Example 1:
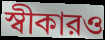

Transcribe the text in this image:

স্বীকারও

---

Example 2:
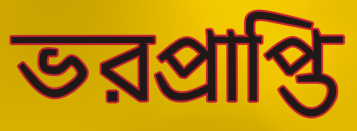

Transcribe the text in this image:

ভরপ্রাপ্তি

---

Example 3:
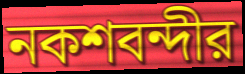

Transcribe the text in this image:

নকশবন্দীর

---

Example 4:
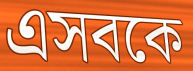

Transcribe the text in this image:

এসবকে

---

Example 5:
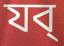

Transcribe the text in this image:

যব্